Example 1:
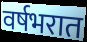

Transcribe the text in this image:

वर्षभरात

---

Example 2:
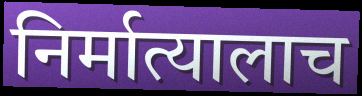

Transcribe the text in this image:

निर्मात्यालाच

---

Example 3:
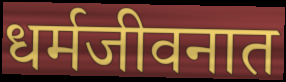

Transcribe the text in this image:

धर्मजीवनात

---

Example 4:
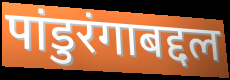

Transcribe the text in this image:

पांडुरंगाबद्दल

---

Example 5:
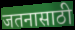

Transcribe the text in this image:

जतनासाठी